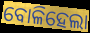
ବୋଳିହେଲା